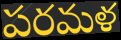
పరమళ